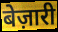
बेज़ारी